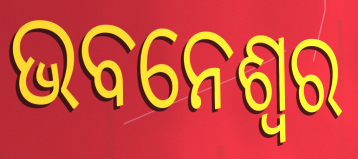
ଭବନେଶ୍ୱର